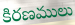
కిరణములు